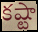
కష్టా